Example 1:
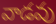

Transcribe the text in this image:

వాడవు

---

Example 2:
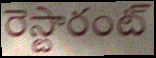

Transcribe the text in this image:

రెస్టారంట్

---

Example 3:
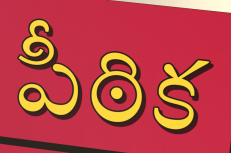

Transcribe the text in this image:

పీఠిక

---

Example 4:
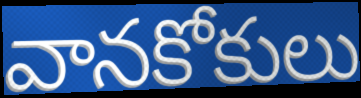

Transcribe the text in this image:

వానకోకులు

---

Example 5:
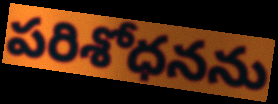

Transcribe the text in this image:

పరిశోధనను